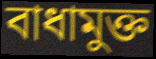
বাধামুক্ত